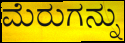
ಮೆರುಗನ್ನು